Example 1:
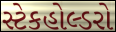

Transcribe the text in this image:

સ્ટેકહોલ્ડરો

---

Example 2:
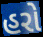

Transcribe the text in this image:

હરો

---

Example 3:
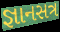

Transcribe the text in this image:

જ્ઞાનસત્ર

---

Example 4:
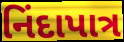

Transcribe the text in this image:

નિંદાપાત્ર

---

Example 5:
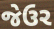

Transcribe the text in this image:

જેઉર